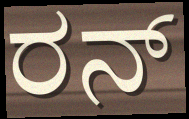
ರನ್